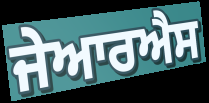
ਜੇਆਰਐਸ